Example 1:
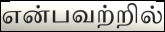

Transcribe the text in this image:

என்பவற்றில்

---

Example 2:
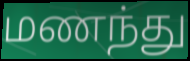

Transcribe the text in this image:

மணந்து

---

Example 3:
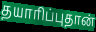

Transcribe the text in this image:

தயாரிப்புதான்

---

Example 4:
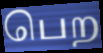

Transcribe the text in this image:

பெற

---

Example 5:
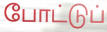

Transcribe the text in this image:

போட்டுப்